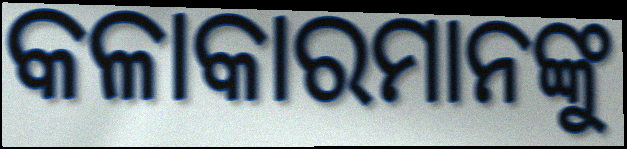
କଳାକାରମାନଙ୍କୁ